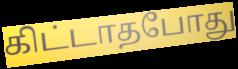
கிட்டாதபோது